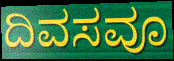
ದಿವಸವೂ